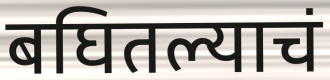
बघितल्याचं